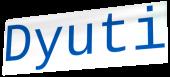
Dyuti